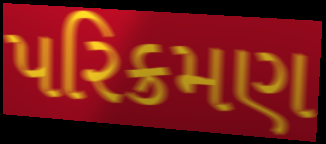
પરિક્રમણ